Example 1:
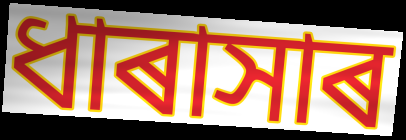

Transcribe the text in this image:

ধাৰাসাৰ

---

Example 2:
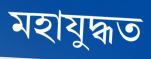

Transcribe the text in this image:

মহাযুদ্ধত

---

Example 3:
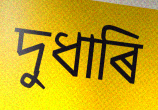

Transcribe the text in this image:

দুধাৰি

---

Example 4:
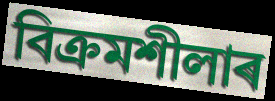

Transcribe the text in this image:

বিক্ৰমশীলাৰ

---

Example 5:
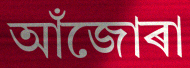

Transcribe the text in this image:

আঁজোৰা